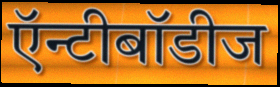
ऍन्टीबॉडीज